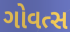
ગોવત્સ